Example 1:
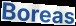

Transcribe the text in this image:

Boreas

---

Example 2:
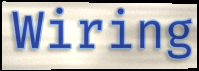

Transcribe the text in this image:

Wiring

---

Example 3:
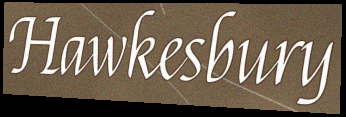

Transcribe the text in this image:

Hawkesbury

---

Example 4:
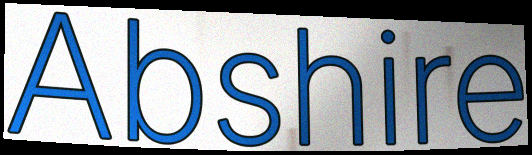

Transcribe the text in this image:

Abshire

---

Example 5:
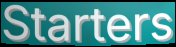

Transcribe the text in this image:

Starters